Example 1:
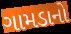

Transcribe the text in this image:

ગામડાનો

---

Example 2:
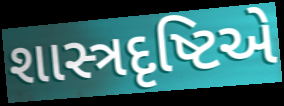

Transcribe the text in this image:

શાસ્ત્રદૃષ્ટિએ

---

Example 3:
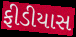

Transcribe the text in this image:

ફીડીયાસ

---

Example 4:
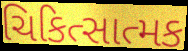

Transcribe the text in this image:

ચિકિત્સાત્મક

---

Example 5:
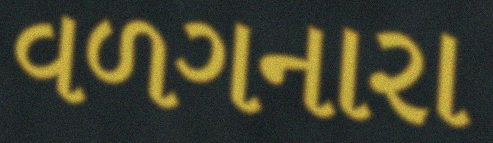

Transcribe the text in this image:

વળગનારા